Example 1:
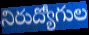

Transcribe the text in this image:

నిరుద్యోగుల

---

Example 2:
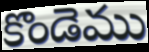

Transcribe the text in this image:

కొండెము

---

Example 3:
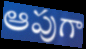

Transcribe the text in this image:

ఆపుగా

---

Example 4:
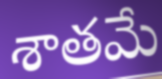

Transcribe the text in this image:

శాతమే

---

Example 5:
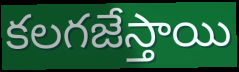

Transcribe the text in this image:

కలగజేస్తాయి